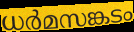
ധർമസങ്കടം